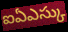
ఐఏఎస్కు